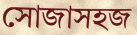
সোজাসহজ